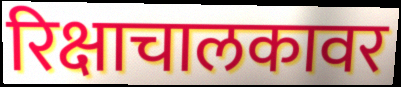
रिक्षाचालकावर